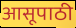
आसूपाठी